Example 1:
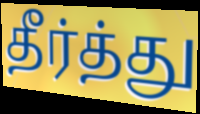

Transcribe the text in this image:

தீர்த்து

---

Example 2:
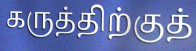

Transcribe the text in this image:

கருத்திற்குத்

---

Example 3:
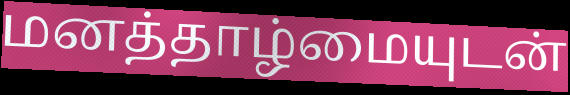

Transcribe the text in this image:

மனத்தாழ்மையுடன்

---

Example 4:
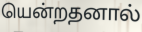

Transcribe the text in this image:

யென்றதனால்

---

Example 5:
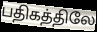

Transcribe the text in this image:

பதிகத்திலே